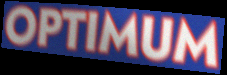
OPTIMUM